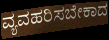
ವ್ಯವಹರಿಸಬೇಕಾದ